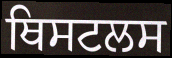
ਥਿਸਟਲਸ